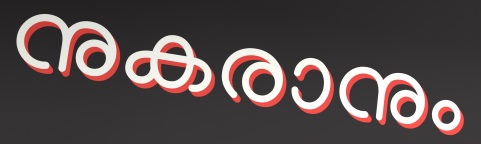
നുകരാനും